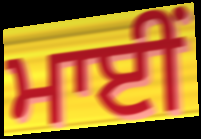
ਮਾਈਂ